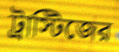
ট্রাস্টিজের